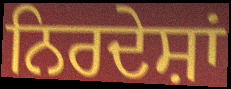
ਨਿਰਦੇਸ਼ਾਂ